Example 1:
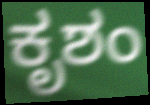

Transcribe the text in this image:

ಕೃಶಂ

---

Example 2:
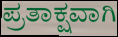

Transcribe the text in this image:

ಪ್ರತಾಕ್ಷವಾಗಿ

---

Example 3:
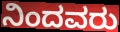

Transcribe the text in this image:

ನಿಂದವರು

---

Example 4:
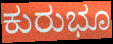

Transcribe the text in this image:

ಕುರುಭೂ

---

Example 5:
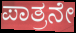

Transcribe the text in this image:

ಪಾತ್ರನೇ